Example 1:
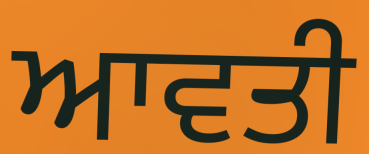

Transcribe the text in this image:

ਆਵਤੀ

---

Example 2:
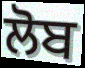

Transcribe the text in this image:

ਲੋਬ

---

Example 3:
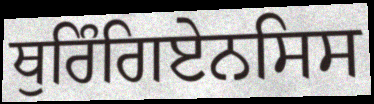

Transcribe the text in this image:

ਥੁਰਿੰਗਿਏਨਸਿਸ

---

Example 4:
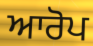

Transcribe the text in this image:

ਆਰੋਪ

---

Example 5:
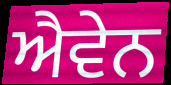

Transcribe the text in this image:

ਐਵੇਨ